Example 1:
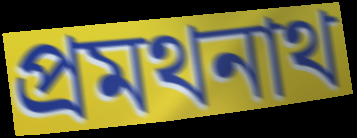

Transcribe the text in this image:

প্রমথনাথ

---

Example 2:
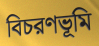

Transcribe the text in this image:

বিচরণভূমি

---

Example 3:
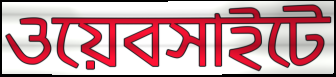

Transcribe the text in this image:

ওয়েবসাইটে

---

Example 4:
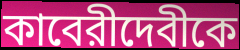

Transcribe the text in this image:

কাবেরীদেবীকে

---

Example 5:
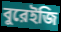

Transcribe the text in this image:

বুরেইজি